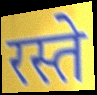
रस्ते